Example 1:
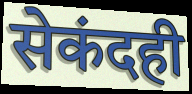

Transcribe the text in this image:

सेकंदही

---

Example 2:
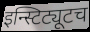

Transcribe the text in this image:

इन्स्टिट्यूटच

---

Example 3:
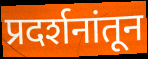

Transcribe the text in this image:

प्रदर्शनांतून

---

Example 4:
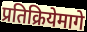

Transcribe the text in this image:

प्रतिक्रियेमागे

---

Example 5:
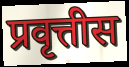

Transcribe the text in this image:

प्रवृत्तीस